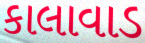
કાલાવાડ